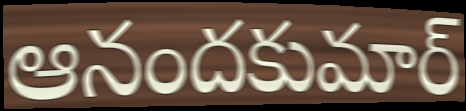
ఆనందకుమార్